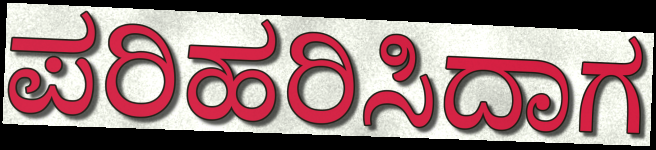
ಪರಿಹರಿಸಿದಾಗ